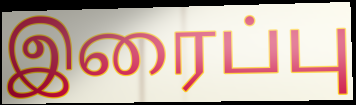
இரைப்பு